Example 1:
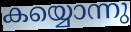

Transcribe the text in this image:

കയ്യൊന്നു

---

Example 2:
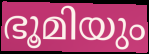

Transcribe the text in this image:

ഭൂമിയും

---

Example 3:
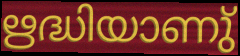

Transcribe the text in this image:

ഋദ്ധിയാണു്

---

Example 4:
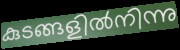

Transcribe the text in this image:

കുടങ്ങളിൽനിന്നു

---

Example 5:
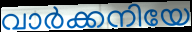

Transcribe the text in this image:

വാർക്കനിയേ